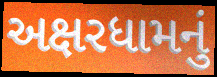
અક્ષરધામનું